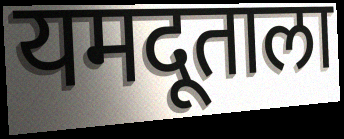
यमदूताला